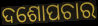
ଦଶୋପଚାର